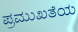
ಪ್ರಮುಖತೆಯ